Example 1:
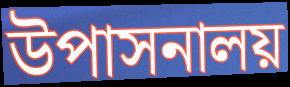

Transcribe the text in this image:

উপাসনালয়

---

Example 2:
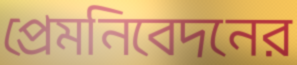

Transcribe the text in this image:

প্রেমনিবেদনের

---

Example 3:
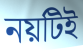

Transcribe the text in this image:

নয়টিই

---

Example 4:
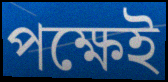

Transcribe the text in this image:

পক্ষেই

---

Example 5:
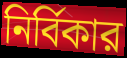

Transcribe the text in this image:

নির্বিকার